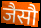
जैसौ